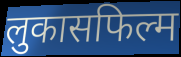
लुकासफिल्म